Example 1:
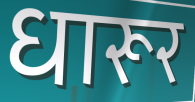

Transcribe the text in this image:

धारूर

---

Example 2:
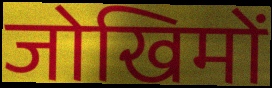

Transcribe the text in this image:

जोखिमों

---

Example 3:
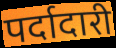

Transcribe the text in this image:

पर्दादारी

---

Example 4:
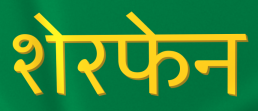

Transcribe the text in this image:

शेरफेन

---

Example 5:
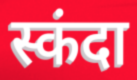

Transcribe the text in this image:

स्कंदा